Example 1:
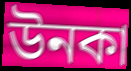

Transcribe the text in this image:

উনকা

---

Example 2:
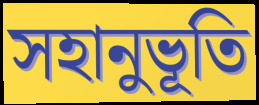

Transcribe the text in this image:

সহানুভূতি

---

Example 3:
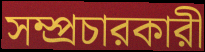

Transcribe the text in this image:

সম্প্রচারকারী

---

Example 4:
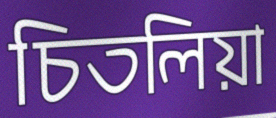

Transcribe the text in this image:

চিতলিয়া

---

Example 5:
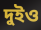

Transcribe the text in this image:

দুইও